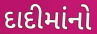
દાદીમાંનો